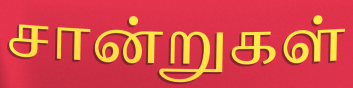
சான்றுகள்